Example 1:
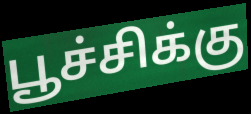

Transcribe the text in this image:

பூச்சிக்கு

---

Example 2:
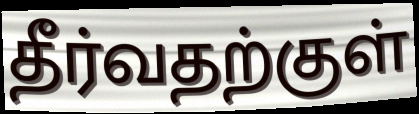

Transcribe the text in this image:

தீர்வதற்குள்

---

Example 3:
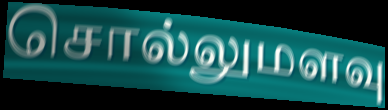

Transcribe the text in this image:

சொல்லுமளவு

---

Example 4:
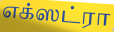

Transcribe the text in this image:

எக்ஸட்ரா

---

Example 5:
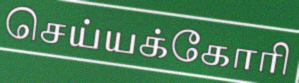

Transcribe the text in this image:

செய்யக்கோரி